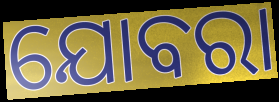
ଯୋବରା